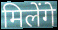
मिलेंगे